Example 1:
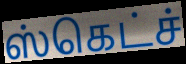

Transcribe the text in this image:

ஸ்கெட்ச்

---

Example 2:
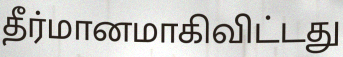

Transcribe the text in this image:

தீர்மானமாகிவிட்டது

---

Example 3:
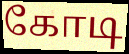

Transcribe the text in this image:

கோடி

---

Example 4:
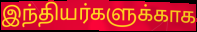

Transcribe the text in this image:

இந்தியர்களுக்காக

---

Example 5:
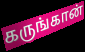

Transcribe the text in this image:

கருங்கான்